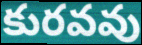
కురవవు